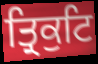
ਤ੍ਰਿਕੁਟਿ